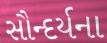
સૌન્દર્યના